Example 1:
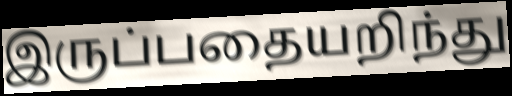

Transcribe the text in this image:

இருப்பதையறிந்து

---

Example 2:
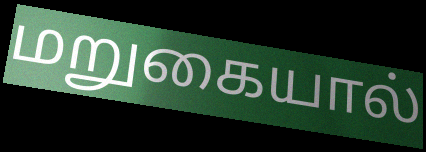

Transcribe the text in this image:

மறுகையால்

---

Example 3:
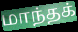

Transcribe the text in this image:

மாந்தக்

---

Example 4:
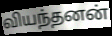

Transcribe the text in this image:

வியந்தனன்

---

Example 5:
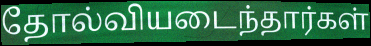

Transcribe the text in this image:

தோல்வியடைந்தார்கள்